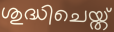
ശുദ്ധിചെയ്ത്